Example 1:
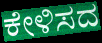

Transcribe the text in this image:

ಕೇಳಿಸದ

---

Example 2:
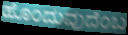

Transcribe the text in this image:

ಹೊಂದುವುದೆಂಬ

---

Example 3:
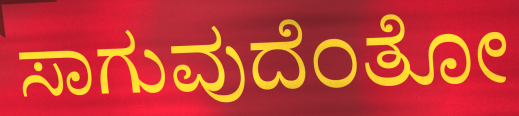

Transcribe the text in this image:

ಸಾಗುವುದೆಂತೋ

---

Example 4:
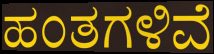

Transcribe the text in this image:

ಹಂತಗಳಿವೆ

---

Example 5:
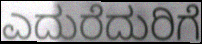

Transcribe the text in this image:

ಎದುರೆದುರಿಗೆ